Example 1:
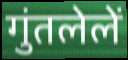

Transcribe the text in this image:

गुंतलेलें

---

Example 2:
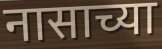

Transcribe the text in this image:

नासाच्या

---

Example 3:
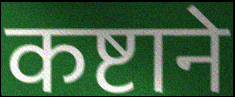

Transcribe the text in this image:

कष्टाने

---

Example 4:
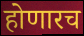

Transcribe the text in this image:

होणारच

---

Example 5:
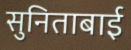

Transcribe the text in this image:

सुनिताबाई